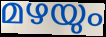
മഴയും